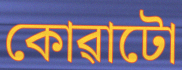
কোৱাটো